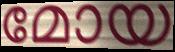
മോയ